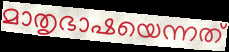
മാതൃഭാഷയെന്നത്